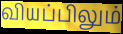
வியப்பிலும்